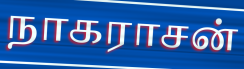
நாகராசன்